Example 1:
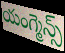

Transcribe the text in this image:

యంగ్మెన్స్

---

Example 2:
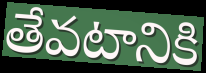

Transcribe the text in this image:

తేవటానికి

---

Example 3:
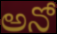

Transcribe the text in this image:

అనో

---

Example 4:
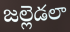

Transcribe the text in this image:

జల్లెడలా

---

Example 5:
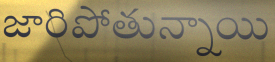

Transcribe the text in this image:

జారిపోతున్నాయి